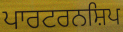
ਪਾਰਟਰਨਸ਼ਿਪ